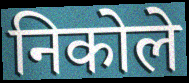
निकोले